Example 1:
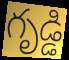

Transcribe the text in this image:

గృడ్డి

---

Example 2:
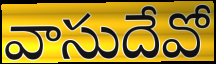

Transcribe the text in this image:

వాసుదేవో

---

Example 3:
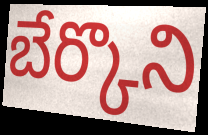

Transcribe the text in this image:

బేర్కొని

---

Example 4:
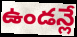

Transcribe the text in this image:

ఉండన్లే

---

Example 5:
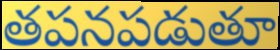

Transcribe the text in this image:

తపనపడుతూ